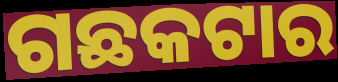
ଗଛକଟାର